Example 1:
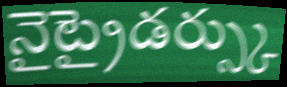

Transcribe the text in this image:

నైట్రైడర్స్కు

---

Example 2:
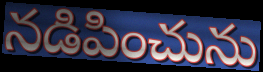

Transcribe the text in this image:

నడిపించును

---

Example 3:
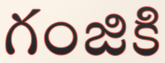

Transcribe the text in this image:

గంజికి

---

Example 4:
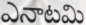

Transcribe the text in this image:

ఎనాటమి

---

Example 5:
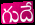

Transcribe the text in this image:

గుదే